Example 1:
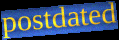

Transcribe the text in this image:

postdated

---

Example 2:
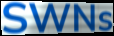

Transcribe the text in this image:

SWNs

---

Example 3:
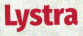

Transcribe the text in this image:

Lystra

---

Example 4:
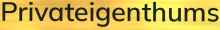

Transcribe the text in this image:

Privateigenthums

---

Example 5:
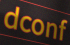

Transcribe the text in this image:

dconf